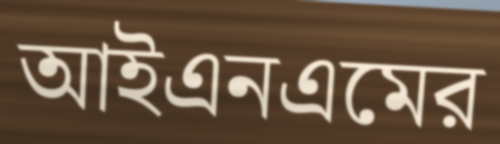
আইএনএমের